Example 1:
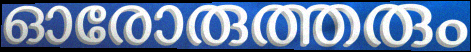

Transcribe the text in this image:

ഓരോരുത്തരും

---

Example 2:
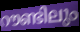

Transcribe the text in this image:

റൗണ്ടിലും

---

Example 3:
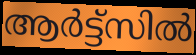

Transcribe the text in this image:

ആർട്ട്സിൽ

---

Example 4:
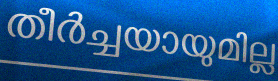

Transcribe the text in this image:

തീർച്ചയായുമില്ല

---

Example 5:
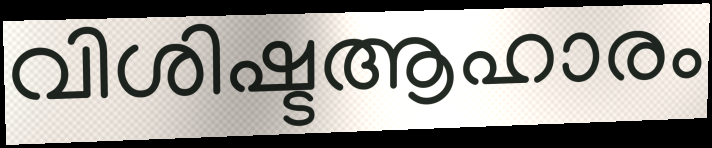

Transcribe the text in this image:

വിശിഷ്ടആഹാരം